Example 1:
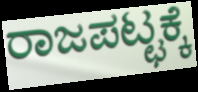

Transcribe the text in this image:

ರಾಜಪಟ್ಟಕ್ಕೆ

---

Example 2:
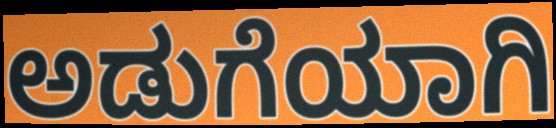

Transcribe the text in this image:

ಅಡುಗೆಯಾಗಿ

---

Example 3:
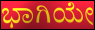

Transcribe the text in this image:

ಭಾಗಿಯೇ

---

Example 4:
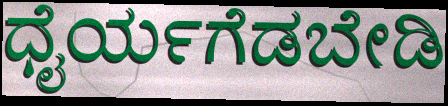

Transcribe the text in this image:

ಧೈರ್ಯಗೆಡಬೇಡಿ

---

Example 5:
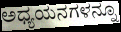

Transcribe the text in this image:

ಅಧ್ಯಯನಗಳನ್ನೂ